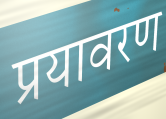
प्रयावरण